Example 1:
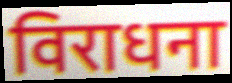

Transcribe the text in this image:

विराधना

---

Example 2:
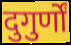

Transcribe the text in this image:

दुगुर्णों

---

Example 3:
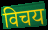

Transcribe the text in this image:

विचय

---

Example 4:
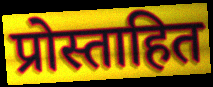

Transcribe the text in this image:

प्रोस्ताहित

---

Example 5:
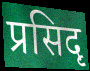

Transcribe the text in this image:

प्रसिदृ